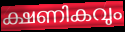
ക്ഷണികവും